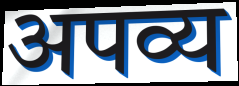
अपव्य